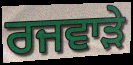
ਰਜਵਾੜੇ